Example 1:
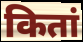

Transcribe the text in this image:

कितां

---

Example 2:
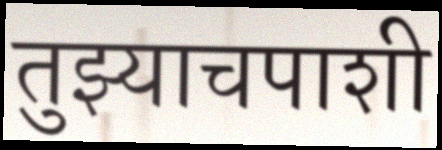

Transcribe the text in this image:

तुझ्याचपाशी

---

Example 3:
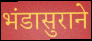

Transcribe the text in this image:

भंडासुराने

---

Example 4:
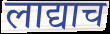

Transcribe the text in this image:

लाद्याच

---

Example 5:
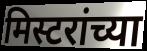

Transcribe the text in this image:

मिस्टरांच्या